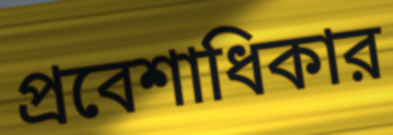
প্রবেশাধিকার